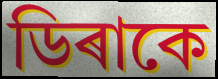
ডিৰাকে